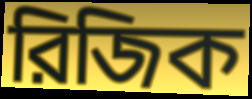
রিজিক